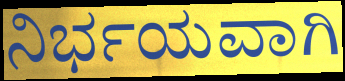
ನಿರ್ಭಯವಾಗಿ